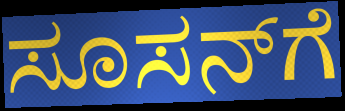
ಸೂಸನ್‌ಗೆ